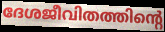
ദേശജീവിതത്തിന്റെ